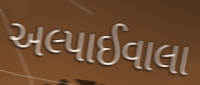
અલ્પાઈવાલા